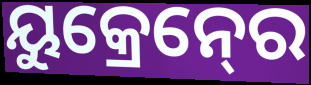
ୟୁକ୍ରେନ୍‍ରେ